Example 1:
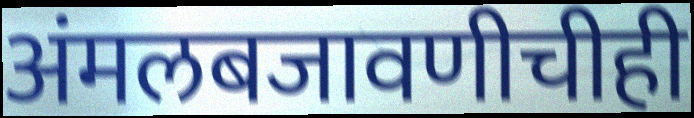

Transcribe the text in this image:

अंमलबजावणीचीही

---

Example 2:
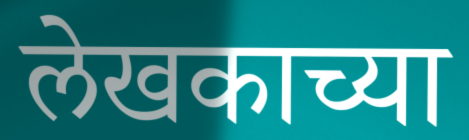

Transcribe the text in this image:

लेखकाच्या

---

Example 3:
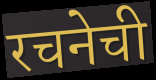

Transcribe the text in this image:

रचनेची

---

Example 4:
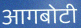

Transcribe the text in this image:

आगबोटी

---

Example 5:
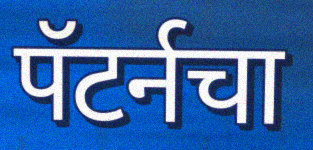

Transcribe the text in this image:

पॅटर्नचा